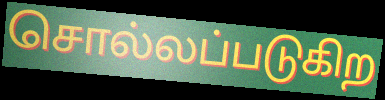
சொல்லப்படுகிற